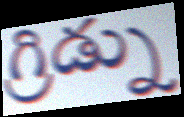
గ్రిడ్ను